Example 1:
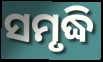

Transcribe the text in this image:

ସମୃଦ୍ଧି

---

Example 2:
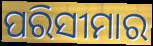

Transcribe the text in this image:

ପରିସୀମାର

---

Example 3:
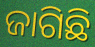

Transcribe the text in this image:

ଜାଗିଛି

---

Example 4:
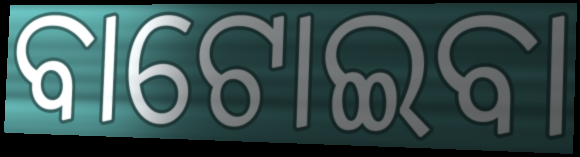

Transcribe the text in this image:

ବାଟୋଇବା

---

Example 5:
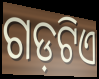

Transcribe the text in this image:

ଗଡ଼ଟିଏ